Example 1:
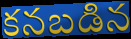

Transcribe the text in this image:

కనబడిన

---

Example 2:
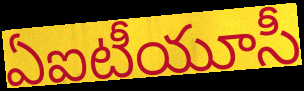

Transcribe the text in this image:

ఏఐటీయూసీ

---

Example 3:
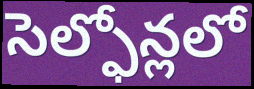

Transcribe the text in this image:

సెల్ఫోన్లలో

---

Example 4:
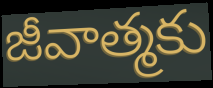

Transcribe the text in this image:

జీవాత్మకు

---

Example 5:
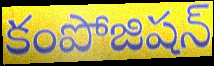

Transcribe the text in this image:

కంపోజిషన్